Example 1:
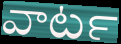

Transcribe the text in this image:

వాటర్‍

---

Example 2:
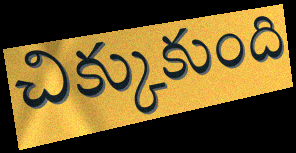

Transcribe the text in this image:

చిక్కుకుంది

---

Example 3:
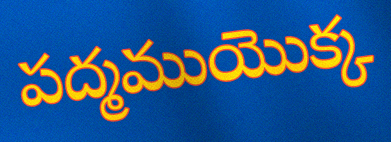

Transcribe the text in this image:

పద్మముయొక్క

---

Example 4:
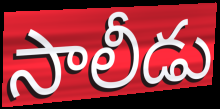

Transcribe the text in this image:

సాలీడు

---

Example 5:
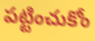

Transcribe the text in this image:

పట్టించుకోం